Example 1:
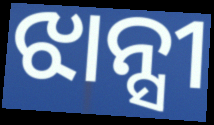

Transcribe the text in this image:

ଝାନ୍ସୀ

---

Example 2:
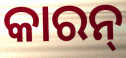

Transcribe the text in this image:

କାରନ୍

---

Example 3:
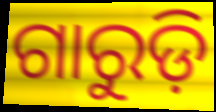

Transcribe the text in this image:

ଗାରୁଡ଼ି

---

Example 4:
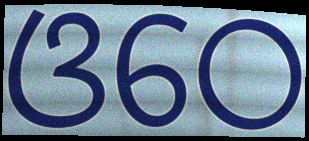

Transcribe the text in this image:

ଓଠେ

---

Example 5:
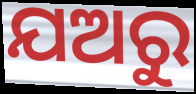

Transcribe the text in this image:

ଯଅରୁ